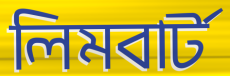
লিমবার্ট